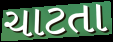
ચાટતા